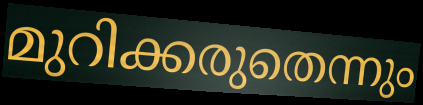
മുറിക്കരുതെന്നും